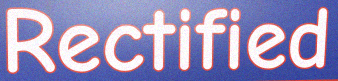
Rectified